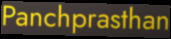
Panchprasthan